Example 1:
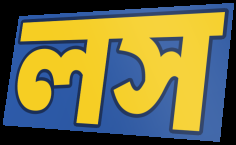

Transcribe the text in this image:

লস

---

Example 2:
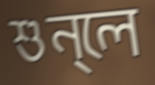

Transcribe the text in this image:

শুন্‌লে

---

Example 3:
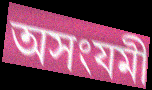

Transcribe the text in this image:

অসংযমী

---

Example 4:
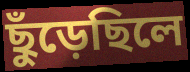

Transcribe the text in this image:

ছুঁড়েছিলে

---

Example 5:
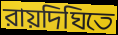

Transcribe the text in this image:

রায়দিঘিতে